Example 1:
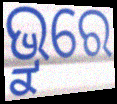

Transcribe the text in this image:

ଭ୍ରୁରେ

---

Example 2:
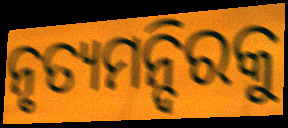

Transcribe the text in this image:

ନୃତ୍ୟମନ୍ଦିରକୁ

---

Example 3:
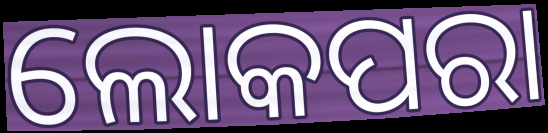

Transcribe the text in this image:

ଲୋକପରା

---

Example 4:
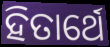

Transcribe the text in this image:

ହିତାର୍ଥେ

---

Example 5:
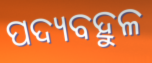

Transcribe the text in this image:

ପଦ୍ୟବହୁଳ